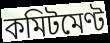
কমিটমেণ্ট